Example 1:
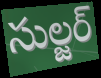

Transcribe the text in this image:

సుల్జర్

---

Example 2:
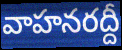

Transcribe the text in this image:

వాహనరద్దీ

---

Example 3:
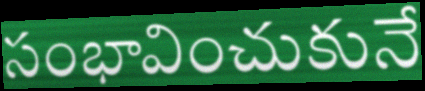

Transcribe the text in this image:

సంభావించుకునే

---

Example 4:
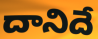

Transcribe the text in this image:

దానిదే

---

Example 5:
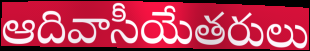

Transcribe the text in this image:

ఆదివాసీయేతరులు